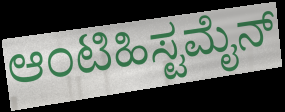
ಆಂಟಿಹಿಸ್ಟಮೈನ್